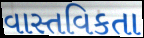
વાસ્તવિકતા